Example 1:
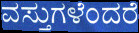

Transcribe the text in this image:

ವಸ್ತುಗಳೆಂದರೆ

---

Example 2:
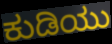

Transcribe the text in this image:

ಕುಡಿಯು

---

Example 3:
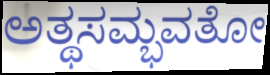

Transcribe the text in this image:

ಅತ್ಥಸಮ್ಭವತೋ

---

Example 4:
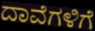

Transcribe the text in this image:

ದಾವೆಗಳಿಗೆ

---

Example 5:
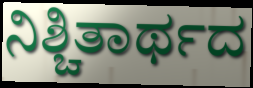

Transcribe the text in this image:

ನಿಶ್ಚಿತಾರ್ಥದ